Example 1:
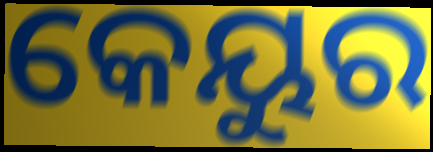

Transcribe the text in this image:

କେୟୁର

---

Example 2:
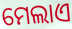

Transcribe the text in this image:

ମେଲାଏ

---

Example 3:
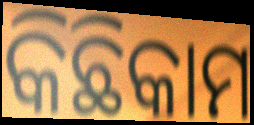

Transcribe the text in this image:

କିଛିକାମ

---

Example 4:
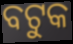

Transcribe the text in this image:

ବଟୁକ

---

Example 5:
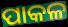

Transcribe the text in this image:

ପାକଳ